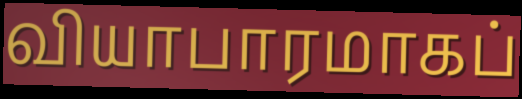
வியாபாரமாகப்